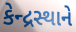
કેન્દ્રસ્થાને